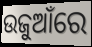
ଉଜୁଆଁରେ